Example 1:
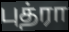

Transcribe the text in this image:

புத்ரா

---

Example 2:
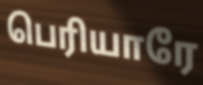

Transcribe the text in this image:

பெரியாரே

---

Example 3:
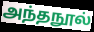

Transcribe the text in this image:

அந்தநூல்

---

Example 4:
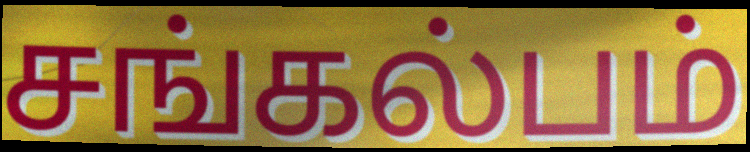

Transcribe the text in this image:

சங்கல்பம்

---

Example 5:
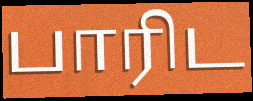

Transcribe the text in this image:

பாரிட